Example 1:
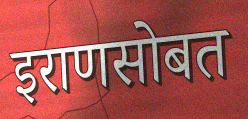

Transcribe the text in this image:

इराणसोबत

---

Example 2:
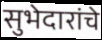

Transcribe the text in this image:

सुभेदारांचे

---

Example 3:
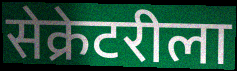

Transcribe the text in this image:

सेक्रेटरीला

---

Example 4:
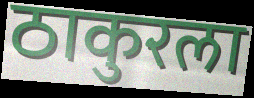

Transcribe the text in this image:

ठाकुरला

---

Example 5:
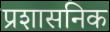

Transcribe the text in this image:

प्रशासनिक